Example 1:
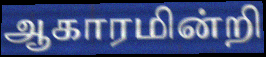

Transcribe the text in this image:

ஆகாரமின்றி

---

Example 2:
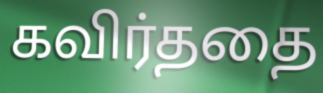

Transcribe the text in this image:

கவிர்ததை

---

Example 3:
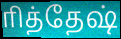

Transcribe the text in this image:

ரித்தேஷ்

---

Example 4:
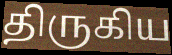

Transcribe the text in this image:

திருகிய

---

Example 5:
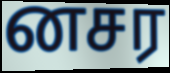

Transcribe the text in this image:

னசர